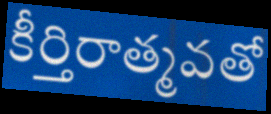
కీర్తిరాత్మవతో